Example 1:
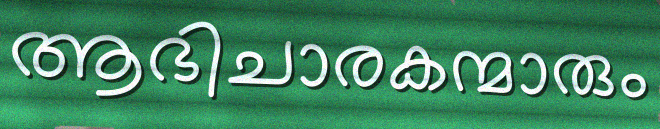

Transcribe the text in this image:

ആഭിചാരകന്മാരും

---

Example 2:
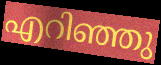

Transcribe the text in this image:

എറിഞ്ഞു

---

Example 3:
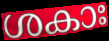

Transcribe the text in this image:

ശകാഃ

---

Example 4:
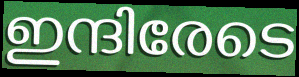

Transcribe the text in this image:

ഇന്ദിരേടെ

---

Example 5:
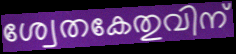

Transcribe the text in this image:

ശ്വേതകേതുവിന്